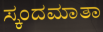
ಸ್ಕಂದಮಾತಾ